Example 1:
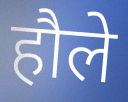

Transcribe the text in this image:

हौले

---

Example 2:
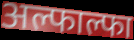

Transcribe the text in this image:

अल्फाल्फा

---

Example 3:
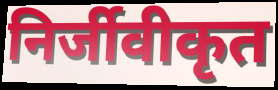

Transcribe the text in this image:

निर्जीवीकृत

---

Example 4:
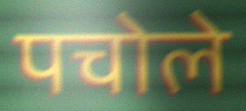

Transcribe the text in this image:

पचोले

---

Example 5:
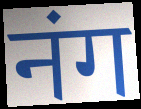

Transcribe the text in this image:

नंग